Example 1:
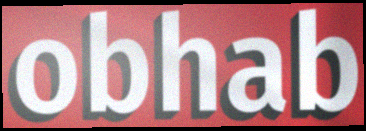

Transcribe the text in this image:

obhab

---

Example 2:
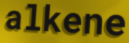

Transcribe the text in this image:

alkene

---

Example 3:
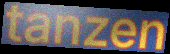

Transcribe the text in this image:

tanzen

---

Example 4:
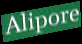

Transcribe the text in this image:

Alipore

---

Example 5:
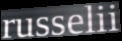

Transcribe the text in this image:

russelii